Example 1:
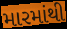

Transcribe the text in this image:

મારમાંથી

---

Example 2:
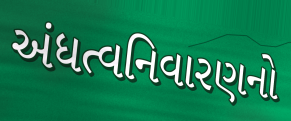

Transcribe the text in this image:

અંધત્વનિવારણનો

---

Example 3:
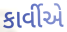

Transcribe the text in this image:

કાર્વીએ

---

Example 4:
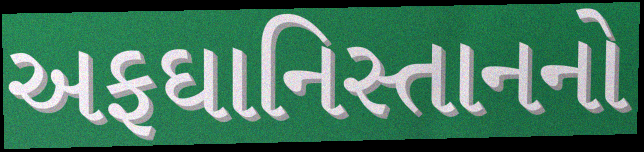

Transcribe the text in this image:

અફઘાનિસ્તાનનો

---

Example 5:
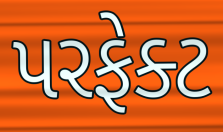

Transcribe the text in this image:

પરફેક્ટ